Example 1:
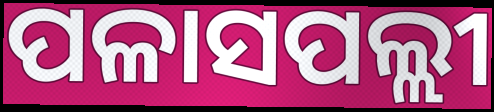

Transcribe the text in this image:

ପଳାସପଲ୍ଲୀ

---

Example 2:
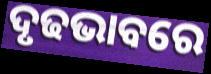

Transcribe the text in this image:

ଦୃଢଭାବରେ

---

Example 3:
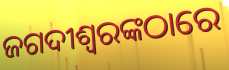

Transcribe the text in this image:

ଜଗଦୀଶ୍ୱରଙ୍କଠାରେ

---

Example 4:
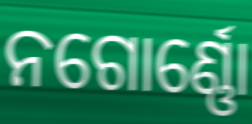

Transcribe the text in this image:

ନଗୋର୍ଣ୍ଣୋ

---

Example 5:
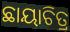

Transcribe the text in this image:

ଛାୟାଚିତ୍ର